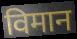
विमान